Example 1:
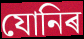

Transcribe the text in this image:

যোনিৰ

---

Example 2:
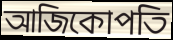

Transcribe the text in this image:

আজিকোপতি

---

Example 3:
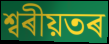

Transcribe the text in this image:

শ্বৰীয়তৰ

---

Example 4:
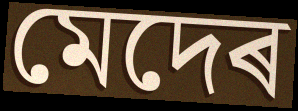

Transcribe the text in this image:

মেদেৰ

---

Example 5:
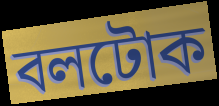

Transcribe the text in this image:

বলটোক